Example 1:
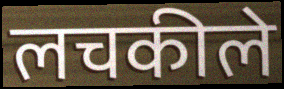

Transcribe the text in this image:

लचकीले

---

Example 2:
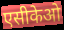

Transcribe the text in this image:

एसीकेओ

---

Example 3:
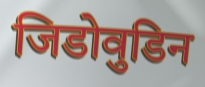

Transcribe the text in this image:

जिडोवुडिन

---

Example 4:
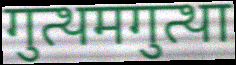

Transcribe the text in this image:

गुत्थमगुत्था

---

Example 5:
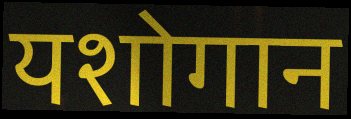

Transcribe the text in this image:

यशोगान